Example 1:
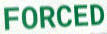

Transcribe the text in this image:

FORCED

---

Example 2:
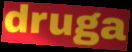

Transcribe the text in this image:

druga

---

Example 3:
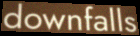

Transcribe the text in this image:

downfalls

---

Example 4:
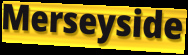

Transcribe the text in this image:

Merseyside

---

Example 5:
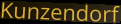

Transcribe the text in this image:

Kunzendorf